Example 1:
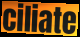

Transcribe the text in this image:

ciliate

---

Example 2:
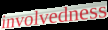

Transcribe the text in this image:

involvedness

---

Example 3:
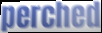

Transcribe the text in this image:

perched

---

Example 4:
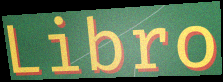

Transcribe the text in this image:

Libro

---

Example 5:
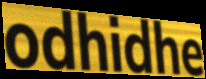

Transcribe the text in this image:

odhidhe